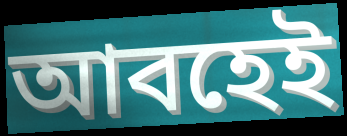
আবহেই